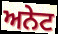
ਅਨੇਟ